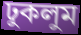
ঢুকলুম